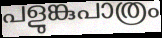
പളുങ്കുപാത്രം